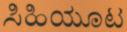
ಸಿಹಿಯೂಟ